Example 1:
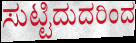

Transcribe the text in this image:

ಸುಟ್ಟಿದುದರಿಂದ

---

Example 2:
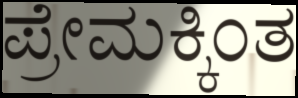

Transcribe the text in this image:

ಪ್ರೇಮಕ್ಕಿಂತ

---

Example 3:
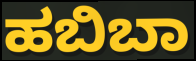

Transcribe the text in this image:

ಹಬಿಬಾ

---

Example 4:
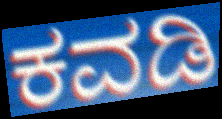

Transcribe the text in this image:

ಕವಡಿ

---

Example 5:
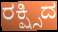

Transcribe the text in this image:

ರಕ್ಷ್ಸಿದ